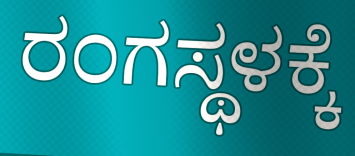
ರಂಗಸ್ಥಳಕ್ಕೆ